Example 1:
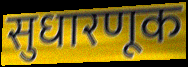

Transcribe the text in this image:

सुधारणूक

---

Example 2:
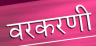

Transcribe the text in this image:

वरकरणी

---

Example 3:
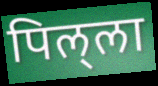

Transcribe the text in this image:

पिल्ला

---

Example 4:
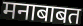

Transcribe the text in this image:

मनाबाबत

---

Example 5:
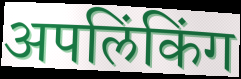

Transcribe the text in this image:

अपलिंकिंग